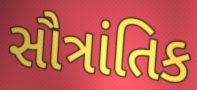
સૌત્રાંતિક